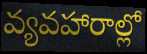
వ్యవహారాల్లో